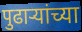
पुढाऱ्यांच्या